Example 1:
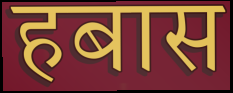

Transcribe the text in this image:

हबास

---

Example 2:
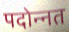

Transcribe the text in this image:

पदोन्नत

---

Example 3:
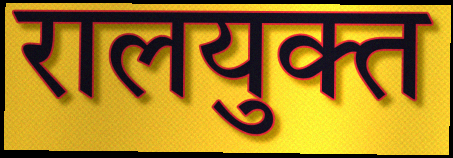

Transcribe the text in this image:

रालयुक्त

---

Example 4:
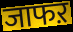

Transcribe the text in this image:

जाफऱ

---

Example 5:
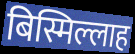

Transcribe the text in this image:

बिस्मिल्‍लाह